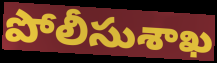
పోలీసుశాఖ